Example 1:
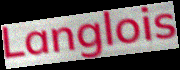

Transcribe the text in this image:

Langlois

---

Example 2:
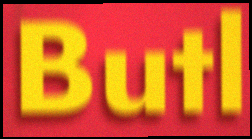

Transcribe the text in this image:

Butl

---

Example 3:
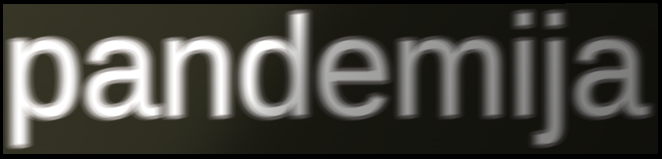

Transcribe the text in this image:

pandemija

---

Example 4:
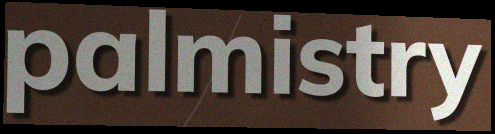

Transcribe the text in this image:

palmistry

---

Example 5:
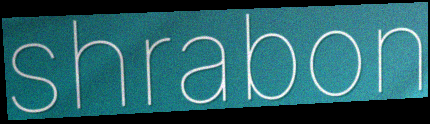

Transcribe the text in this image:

shrabon